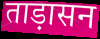
ताड़ासन